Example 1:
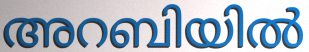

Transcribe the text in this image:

അറബിയിൽ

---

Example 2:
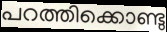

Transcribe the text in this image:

പറത്തിക്കൊണ്ടു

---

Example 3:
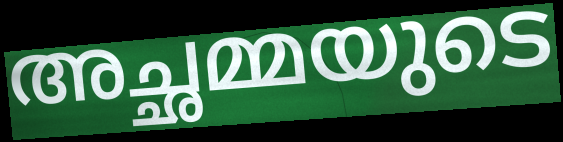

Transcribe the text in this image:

അച്ഛമ്മയുടെ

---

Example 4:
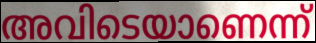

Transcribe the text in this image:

അവിടെയാണെന്ന്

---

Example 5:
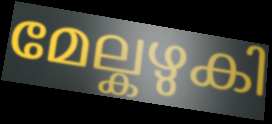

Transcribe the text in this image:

മേല്കഴുകി